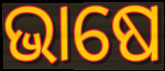
ଭାଷେ